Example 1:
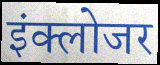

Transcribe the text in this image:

इंक्लोजर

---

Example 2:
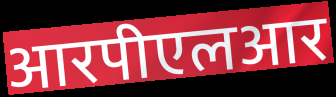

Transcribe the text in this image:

आरपीएलआर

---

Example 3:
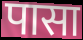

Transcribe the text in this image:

पासा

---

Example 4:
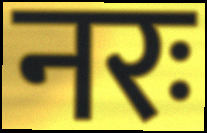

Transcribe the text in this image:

नरः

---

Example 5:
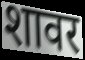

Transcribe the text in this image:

शावर